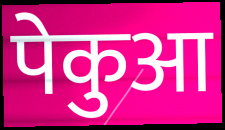
पेकुआ